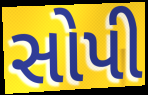
સોપી